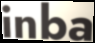
inba